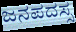
ಜನಪದಸ್ಸ